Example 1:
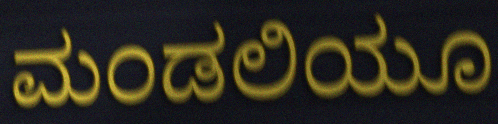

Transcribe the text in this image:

ಮಂಡಲಿಯೂ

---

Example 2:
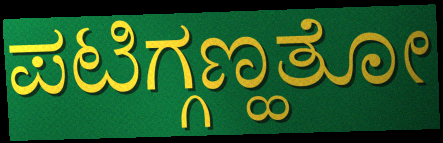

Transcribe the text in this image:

ಪಟಿಗ್ಗಣ್ಹತೋ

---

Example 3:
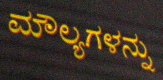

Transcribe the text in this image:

ಮೌಲ್ಯಗಳನ್ನು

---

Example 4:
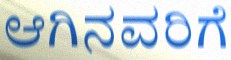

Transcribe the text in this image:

ಆಗಿನವರಿಗೆ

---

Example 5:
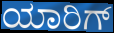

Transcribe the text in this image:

ಯಾರಿಗ್